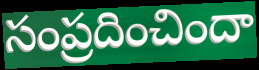
సంప్రదించిందా